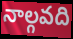
నాల్గవది